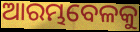
ଆରମ୍ଭବେଳକୁ